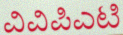
ವಿವಿಪಿಎಟಿ